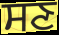
ਸਣ